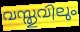
വസ്തുവിലും